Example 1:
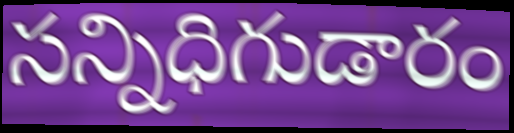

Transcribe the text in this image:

సన్నిధిగుడారం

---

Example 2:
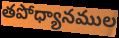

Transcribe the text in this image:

తపోధ్యానముల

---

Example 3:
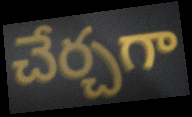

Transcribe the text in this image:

చేర్చగా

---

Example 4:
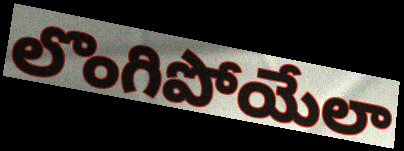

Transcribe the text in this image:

లొంగిపోయేలా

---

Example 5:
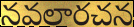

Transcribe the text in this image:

నవలారచన